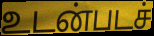
உடன்படச்